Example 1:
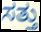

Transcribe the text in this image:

ಸತ್ತು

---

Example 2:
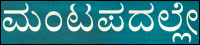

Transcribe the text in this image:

ಮಂಟಪದಲ್ಲೇ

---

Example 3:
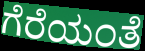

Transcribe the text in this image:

ಗೆರೆಯಂತೆ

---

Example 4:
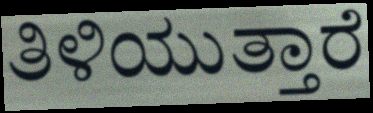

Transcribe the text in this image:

ತಿಳಿಯುತ್ತಾರೆ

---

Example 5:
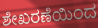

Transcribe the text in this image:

ಶೇಖರಣೆಯಿಂದ